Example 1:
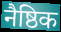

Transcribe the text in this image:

नैष्ठिक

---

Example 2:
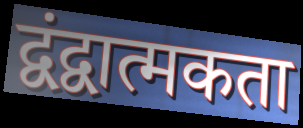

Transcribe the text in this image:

द्वंद्वात्मकता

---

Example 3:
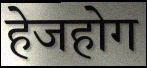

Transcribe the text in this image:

हेजहोग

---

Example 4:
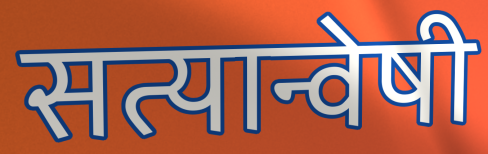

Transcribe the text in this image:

सत्यान्वेषी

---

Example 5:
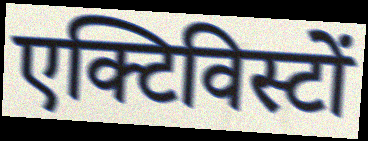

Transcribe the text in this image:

एक्टिविस्टों